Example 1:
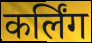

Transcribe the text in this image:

कर्लिंग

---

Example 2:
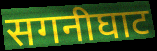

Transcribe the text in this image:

सगनीघाट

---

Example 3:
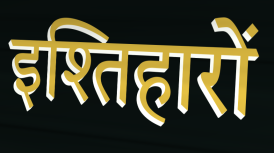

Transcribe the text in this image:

इश्तिहारों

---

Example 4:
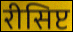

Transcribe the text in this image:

रीसिप्ट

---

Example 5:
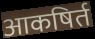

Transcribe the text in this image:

आकषिर्त